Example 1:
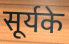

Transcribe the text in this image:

सूर्यके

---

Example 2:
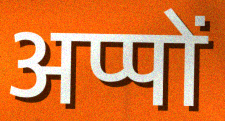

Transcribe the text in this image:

अप्पों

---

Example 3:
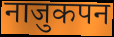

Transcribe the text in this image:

नाजुकपन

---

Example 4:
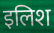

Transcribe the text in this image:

इलिश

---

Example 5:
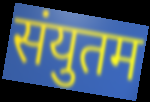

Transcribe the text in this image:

संयुतम